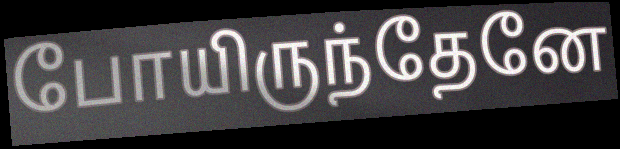
போயிருந்தேனே